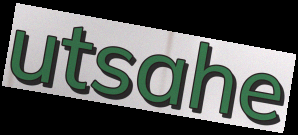
utsahe